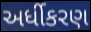
અર્ધીકરણ